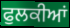
ਫੁਲਕੀਆਂ